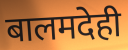
बालमदेही